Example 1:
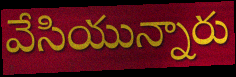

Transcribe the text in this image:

వేసియున్నారు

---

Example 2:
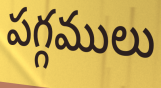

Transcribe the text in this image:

పగ్గములు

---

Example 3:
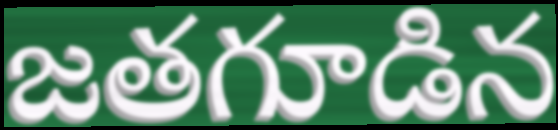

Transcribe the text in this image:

జతగూడిన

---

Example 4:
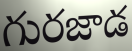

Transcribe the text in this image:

గురజాడ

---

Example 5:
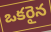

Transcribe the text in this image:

ఒకరైన